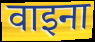
वाइना